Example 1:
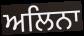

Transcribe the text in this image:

ਅਲਿਨਾ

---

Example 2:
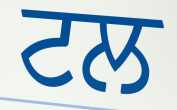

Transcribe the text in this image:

ਟਲ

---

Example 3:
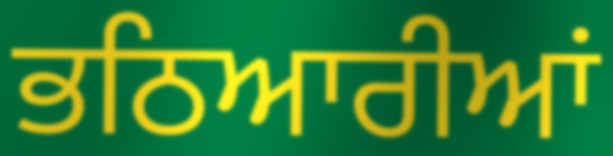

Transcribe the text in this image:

ਭਠਿਆਰੀਆਂ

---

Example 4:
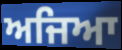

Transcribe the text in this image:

ਅਜਿਆ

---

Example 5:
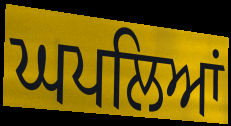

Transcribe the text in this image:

ਘਪਲਿਆਂ